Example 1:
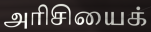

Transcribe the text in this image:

அரிசியைக்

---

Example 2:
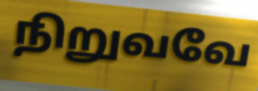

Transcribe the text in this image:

நிறுவவே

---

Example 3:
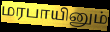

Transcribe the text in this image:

மரபாயினும்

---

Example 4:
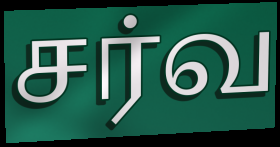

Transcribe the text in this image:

சர்வ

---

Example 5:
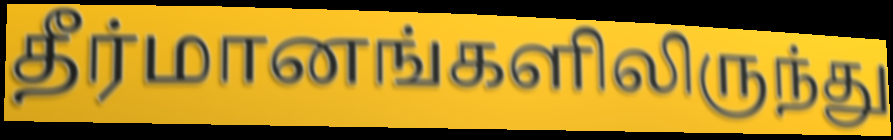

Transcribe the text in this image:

தீர்மானங்களிலிருந்து